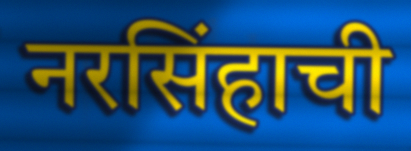
नरसिंहाची